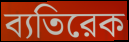
ব্যতিরেক